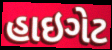
હાઇગેટ